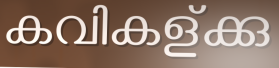
കവികള്ക്കു